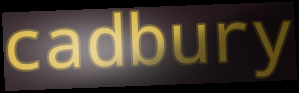
cadbury